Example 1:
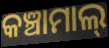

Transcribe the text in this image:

କଞ୍ଚାମାଲ୍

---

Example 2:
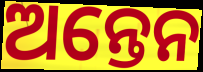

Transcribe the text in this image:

ଅନ୍ତେନ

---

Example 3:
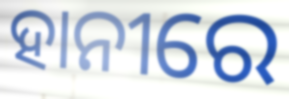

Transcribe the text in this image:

ହାନୀରେ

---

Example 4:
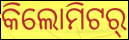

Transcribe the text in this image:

କିଲୋମିଟର୍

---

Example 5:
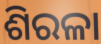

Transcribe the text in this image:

ଶିରଳା